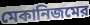
মেকানিজমের